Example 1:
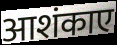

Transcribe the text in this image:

आशंकाए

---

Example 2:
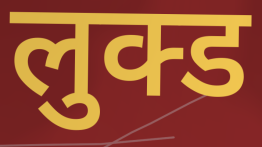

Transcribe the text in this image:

लुक्ड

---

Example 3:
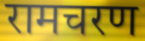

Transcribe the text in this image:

रामचरण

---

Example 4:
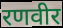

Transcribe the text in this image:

रणवीर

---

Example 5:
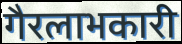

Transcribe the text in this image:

गैरलाभकारी